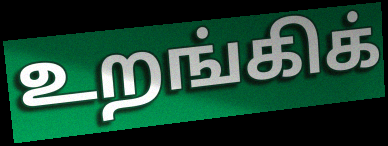
உறங்கிக்